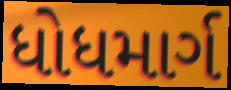
ધોધમાર્ગ